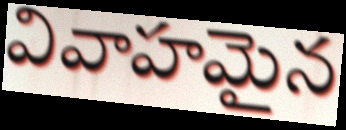
వివాహమైన